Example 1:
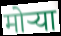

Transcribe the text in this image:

मोऱ्या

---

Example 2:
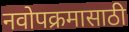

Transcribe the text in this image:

नवोपक्रमासाठी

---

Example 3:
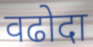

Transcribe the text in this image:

वढोदा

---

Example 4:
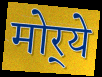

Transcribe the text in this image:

मोर्ये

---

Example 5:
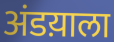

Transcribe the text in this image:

अंडय़ाला